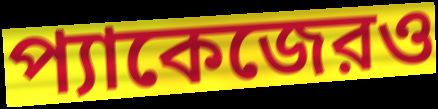
প্যাকেজেরও